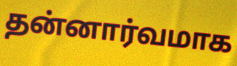
தன்னார்வமாக